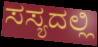
ಸಸ್ಯದಲ್ಲಿ